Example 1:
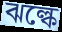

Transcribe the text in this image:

ঝল্কে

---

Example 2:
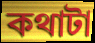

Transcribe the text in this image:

কথাটা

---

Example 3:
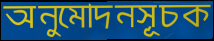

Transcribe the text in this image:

অনুমোদনসূচক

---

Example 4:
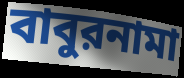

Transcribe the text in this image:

বাবুরনামা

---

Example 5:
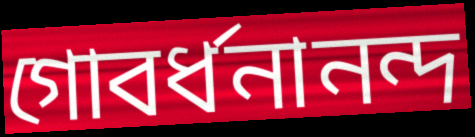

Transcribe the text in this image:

গোবর্ধনানন্দ